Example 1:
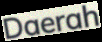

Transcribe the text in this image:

Daerah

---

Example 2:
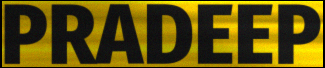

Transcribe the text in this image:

PRADEEP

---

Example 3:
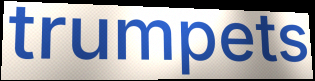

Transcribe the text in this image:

trumpets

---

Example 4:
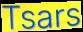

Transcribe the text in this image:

Tsars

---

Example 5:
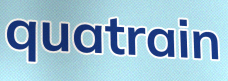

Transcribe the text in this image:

quatrain